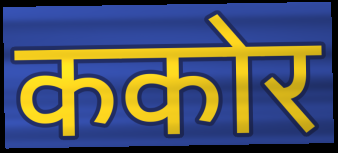
ककोर